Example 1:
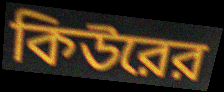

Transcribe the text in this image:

কিউরের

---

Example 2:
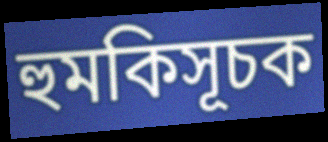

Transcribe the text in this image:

হুমকিসূচক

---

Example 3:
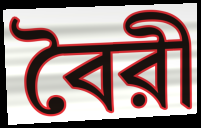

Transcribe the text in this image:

বৈরী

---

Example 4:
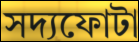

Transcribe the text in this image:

সদ্যফোটা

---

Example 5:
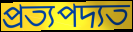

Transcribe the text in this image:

প্রত্যপদ্যত